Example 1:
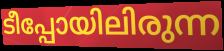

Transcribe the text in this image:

ടീപ്പോയിലിരുന്ന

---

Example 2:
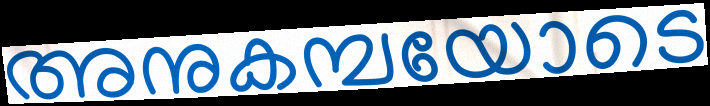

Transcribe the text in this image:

അനുകമ്പയോടെ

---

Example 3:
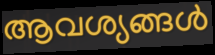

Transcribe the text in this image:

ആവശ്യങ്ങൾ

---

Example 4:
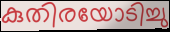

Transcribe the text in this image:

കുതിരയോടിച്ചു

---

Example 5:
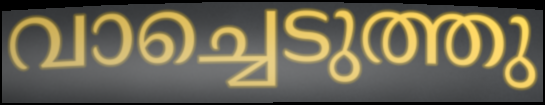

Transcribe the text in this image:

വാച്ചെടുത്തു